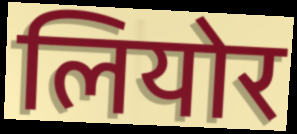
लियोर